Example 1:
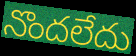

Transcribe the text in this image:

నొందలేదు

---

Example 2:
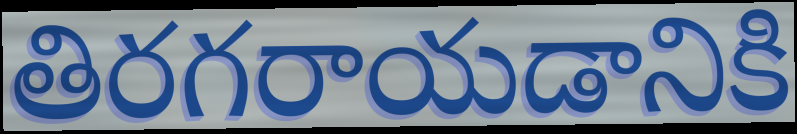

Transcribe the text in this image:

తిరగరాయడానికి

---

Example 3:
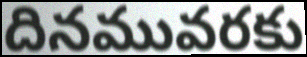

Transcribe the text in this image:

దినమువరకు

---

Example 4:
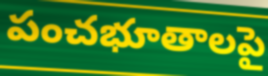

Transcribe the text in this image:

పంచభూతాలపై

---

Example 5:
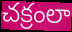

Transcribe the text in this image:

చక్రంలా